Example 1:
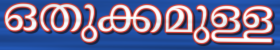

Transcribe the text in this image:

ഒതുക്കമുള്ള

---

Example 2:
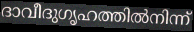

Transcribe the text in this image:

ദാവീദുഗൃഹത്തിൽനിന്ന്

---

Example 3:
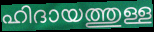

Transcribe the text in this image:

ഹിദായത്തുള്ള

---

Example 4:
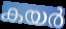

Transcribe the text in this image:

കയർ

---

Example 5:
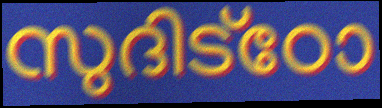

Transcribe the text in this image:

സുദിട്ഠോ